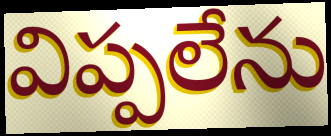
విప్పలేను